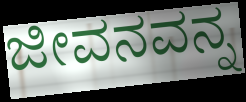
ಜೀವನವನ್ನ